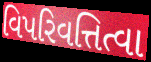
વિપરિવત્તિત્વા